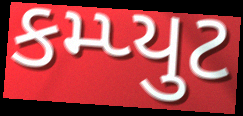
કમ્પ્યુટ